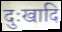
दुःखादि